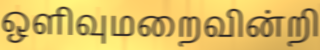
ஒளிவுமறைவின்றி